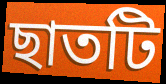
ছাতটি